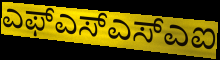
ಎಫ್ಎಸ್ಎಸ್ಎಐ